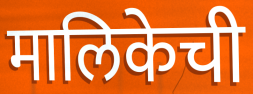
मालिकेची